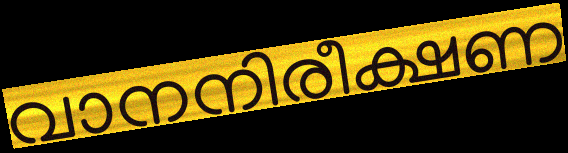
വാനനിരീക്ഷണ